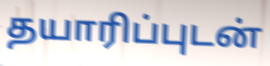
தயாரிப்புடன்